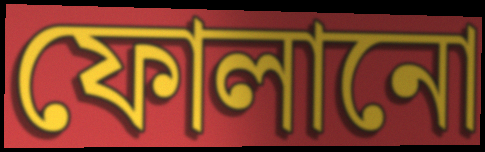
ফোলানো